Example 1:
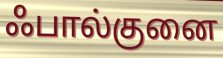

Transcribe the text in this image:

ஃபால்குனை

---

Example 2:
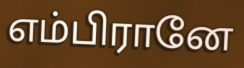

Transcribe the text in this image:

எம்பிரானே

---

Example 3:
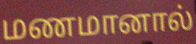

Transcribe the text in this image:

மணமானால்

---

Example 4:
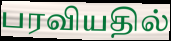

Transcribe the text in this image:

பரவியதில்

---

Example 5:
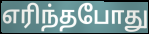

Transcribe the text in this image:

எரிந்தபோது